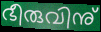
ഭീരുവിനു്